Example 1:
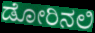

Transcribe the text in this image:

ಡೋರಿನಲಿ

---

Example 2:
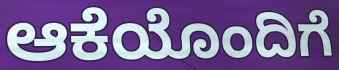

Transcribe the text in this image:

ಆಕೆಯೊಂದಿಗೆ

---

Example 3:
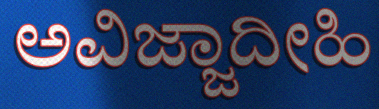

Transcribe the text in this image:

ಅವಿಜ್ಜಾದೀಹಿ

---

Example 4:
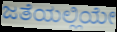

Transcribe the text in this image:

ಜತೆಯಲ್ಲಿಯೇ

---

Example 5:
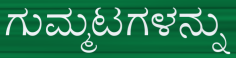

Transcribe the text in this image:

ಗುಮ್ಮಟಗಳನ್ನು